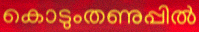
കൊടുംതണുപ്പിൽ